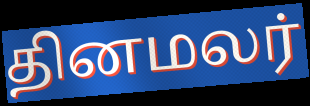
தினமலர்